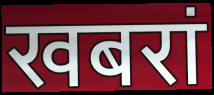
खबरां